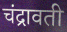
चंद्रावती